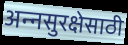
अन्नसुरक्षेसाठी